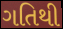
ગતિથી